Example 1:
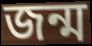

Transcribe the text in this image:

জন্ম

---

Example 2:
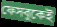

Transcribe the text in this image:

ফেসবুকেই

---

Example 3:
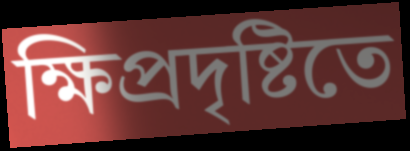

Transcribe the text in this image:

ক্ষিপ্রদৃষ্টিতে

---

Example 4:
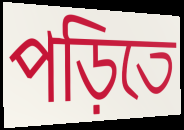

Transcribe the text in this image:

পড়িতে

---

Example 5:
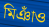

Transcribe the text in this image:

মিঞাঁও